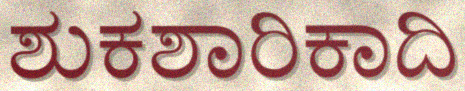
ಶುಕಶಾರಿಕಾದಿ